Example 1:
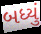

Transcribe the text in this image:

બધ્યું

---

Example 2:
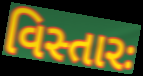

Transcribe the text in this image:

વિસ્તારઃ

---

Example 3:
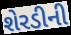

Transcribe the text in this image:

શેરડીની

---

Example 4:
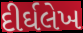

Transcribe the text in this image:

દીર્ઘલેખ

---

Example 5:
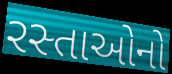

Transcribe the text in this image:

રસ્તાઓનો